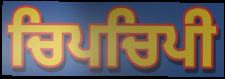
ਚਿਪਚਿਪੀ